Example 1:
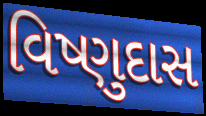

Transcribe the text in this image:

વિષ્ણુદાસ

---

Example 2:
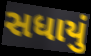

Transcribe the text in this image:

સધાયું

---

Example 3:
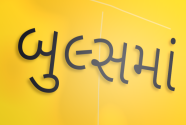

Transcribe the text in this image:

બુલ્સમાં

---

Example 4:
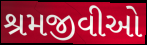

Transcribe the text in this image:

શ્રમજીવીઓ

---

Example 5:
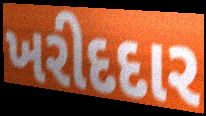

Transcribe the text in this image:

ખરીદદાર